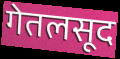
गेतलसूद